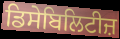
ਡਿਸੇਬਿਲਿਟੀਜ਼